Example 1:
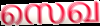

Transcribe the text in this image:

സെഖ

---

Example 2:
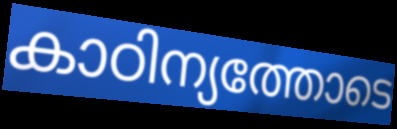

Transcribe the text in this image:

കാഠിന്യത്തോടെ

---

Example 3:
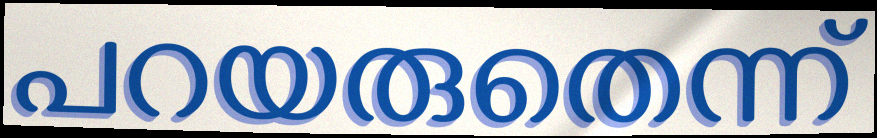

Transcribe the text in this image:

പറയരുതെന്ന്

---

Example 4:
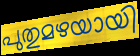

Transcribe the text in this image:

പുതുമഴയായി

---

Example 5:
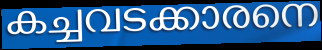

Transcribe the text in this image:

കച്ചവടക്കാരനെ